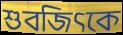
শুবজিৎকে